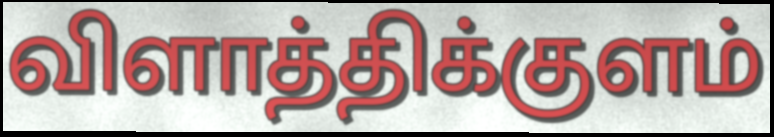
விளாத்திக்குளம்